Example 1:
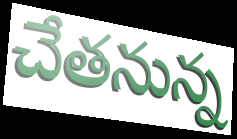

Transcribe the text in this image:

చేతనున్న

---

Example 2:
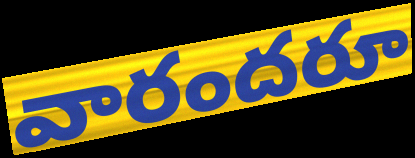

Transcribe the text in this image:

వారందరూ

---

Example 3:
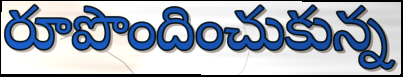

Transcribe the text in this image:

రూపొందించుకున్న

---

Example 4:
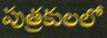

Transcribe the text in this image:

పుత్రకులలో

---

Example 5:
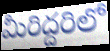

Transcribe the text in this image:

మీరిద్దరిలో